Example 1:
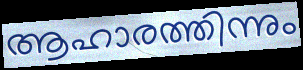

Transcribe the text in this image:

ആഹാരത്തിന്നും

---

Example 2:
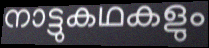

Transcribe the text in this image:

നാട്ടുകഥകളും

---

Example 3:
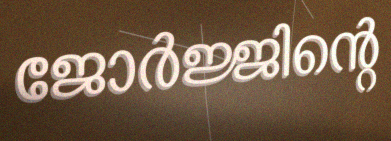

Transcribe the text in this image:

ജോർജ്ജിന്റെ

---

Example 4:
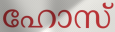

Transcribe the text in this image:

ഹോസ്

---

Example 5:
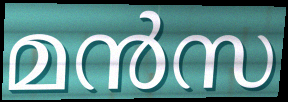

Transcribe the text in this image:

മൻസ